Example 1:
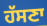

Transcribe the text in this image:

ਹੱਸਣਾ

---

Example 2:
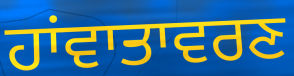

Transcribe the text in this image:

ਹਾਂਵਾਤਾਵਰਣ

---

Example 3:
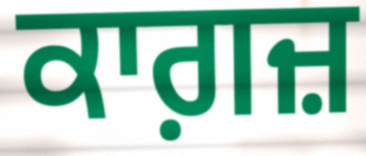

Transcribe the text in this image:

ਕਾਗ਼ਜ਼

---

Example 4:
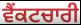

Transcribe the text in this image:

ਵੈਂਕਟਚਾਰੀ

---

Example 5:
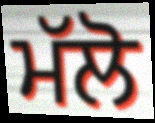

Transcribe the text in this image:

ਮੱਲੋ